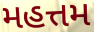
મહત્તમ